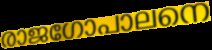
രാജഗോപാലനെ